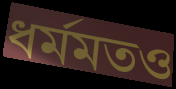
ধর্মমতও